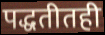
पद्धतीतही